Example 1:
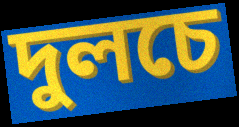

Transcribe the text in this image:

দুলচে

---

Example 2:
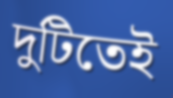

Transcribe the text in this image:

দুটিতেই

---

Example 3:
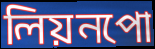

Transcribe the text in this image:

লিয়নপো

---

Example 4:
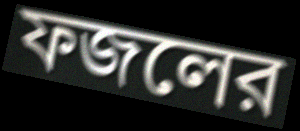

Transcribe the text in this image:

ফজলের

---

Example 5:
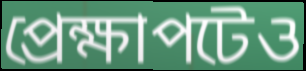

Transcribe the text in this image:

প্রেক্ষাপটেও